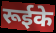
रूईके